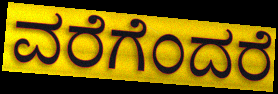
ವರೆಗೆಂದರೆ